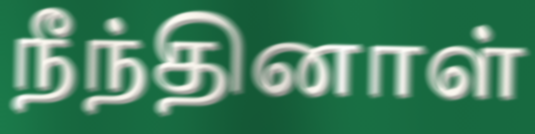
நீந்தினாள்